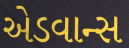
એડવાન્સ